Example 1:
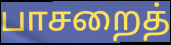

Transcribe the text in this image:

பாசறைத்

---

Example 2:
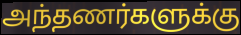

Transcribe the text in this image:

அந்தணர்களுக்கு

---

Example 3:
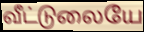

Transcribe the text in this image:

வீட்டுலையே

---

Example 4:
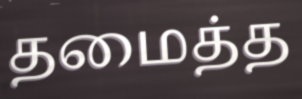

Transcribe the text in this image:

தமைத்த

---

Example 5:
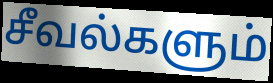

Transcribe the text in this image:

சீவல்களும்